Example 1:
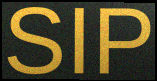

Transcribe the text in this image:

SIP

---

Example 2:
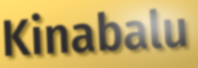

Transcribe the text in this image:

Kinabalu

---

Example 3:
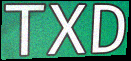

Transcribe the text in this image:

TXD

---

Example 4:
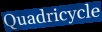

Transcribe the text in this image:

Quadricycle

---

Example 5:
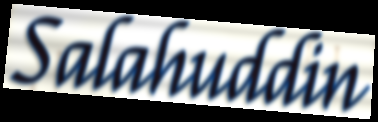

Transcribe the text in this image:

Salahuddin